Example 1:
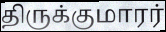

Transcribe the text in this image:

திருக்குமாரர்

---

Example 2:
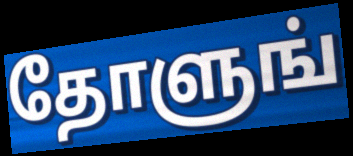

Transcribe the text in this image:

தோளுங்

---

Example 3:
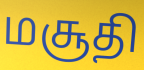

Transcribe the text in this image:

மசூதி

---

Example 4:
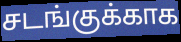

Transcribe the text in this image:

சடங்குக்காக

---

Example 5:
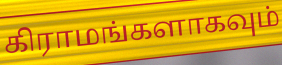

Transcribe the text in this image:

கிராமங்களாகவும்